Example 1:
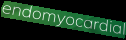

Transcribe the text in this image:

endomyocardial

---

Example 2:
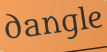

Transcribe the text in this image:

dangle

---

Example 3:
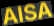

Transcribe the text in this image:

AISA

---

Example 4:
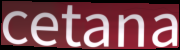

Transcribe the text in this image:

cetana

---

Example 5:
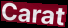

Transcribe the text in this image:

Carat